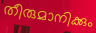
തീരുമാനിക്കും